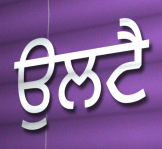
ਉਲਟੈ